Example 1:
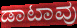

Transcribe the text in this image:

ಡಾಟಾವು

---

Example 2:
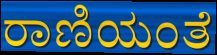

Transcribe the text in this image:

ರಾಣಿಯಂತೆ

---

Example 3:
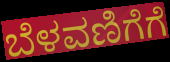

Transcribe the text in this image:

ಬೆಳವಣಿಗೆಗೆ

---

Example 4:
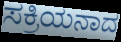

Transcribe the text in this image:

ಸಕ್ರಿಯನಾದ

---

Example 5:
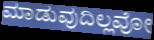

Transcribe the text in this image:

ಮಾಡುವುದಿಲ್ಲವೋ